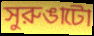
সুৰুঙাটো